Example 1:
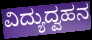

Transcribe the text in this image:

ವಿದ್ಯುದ್ವಹನ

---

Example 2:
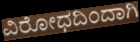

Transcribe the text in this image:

ವಿರೋಧದಿಂದಾಗಿ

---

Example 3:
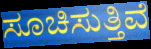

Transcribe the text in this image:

ಸೂಚಿಸುತ್ತಿವೆ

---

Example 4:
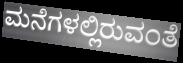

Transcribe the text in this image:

ಮನೆಗಳಲ್ಲಿರುವಂತೆ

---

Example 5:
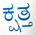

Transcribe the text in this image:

ಕ್ಷತ್ತ